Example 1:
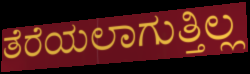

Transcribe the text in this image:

ತೆರೆಯಲಾಗುತ್ತಿಲ್ಲ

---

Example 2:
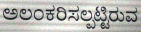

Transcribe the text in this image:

ಅಲಂಕರಿಸಲ್ಪಟ್ಟಿರುವ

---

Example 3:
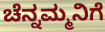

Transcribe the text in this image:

ಚೆನ್ನಮ್ಮನಿಗೆ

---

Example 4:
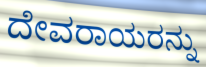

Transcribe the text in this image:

ದೇವರಾಯರನ್ನು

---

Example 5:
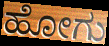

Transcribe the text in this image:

ಹೋಗು